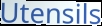
Utensils